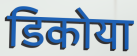
डिकोया